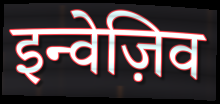
इन्वेज़िव